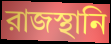
রাজস্থানি